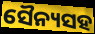
ସୈନ୍ୟସହ